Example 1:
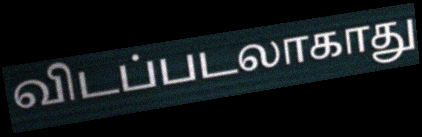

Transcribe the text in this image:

விடப்படலாகாது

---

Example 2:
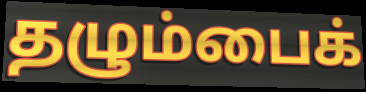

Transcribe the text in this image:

தழும்பைக்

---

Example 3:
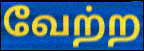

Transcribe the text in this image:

வேற்ற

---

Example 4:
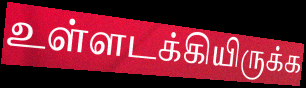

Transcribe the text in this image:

உள்ளடக்கியிருக்க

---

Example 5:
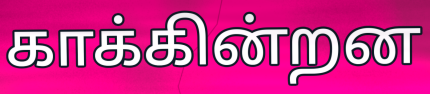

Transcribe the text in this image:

காக்கின்றன